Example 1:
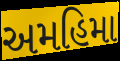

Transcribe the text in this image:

અમહિમા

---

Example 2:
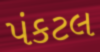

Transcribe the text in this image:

પંકટલ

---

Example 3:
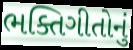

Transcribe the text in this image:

ભક્તિગીતોનું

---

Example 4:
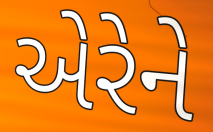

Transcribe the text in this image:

એરેને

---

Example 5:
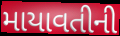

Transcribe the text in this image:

માયાવતીની